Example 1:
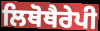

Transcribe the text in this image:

ਲਿਥੋਥੈਰੇਪੀ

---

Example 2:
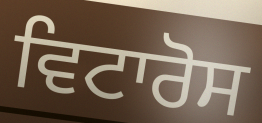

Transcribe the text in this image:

ਵਿਟਾਰੋਸ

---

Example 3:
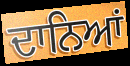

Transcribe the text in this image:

ਦਾਨਿਆਂ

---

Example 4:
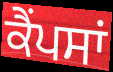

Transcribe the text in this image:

ਕੈਂਪਸਾਂ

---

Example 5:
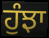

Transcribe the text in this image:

ਹੁੰਝਾ